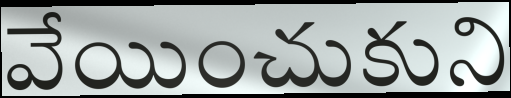
వేయించుకుని